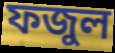
ফজুল